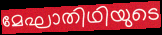
മേഘാതിഥിയുടെ